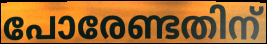
പോരേണ്ടതിന്